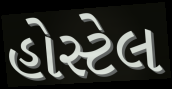
હોસ્ટેલ